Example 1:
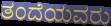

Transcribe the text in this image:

ತಂದೆಯವರು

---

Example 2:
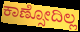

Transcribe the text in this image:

ಕಾಣ್ಸೋದಿಲ್ಲ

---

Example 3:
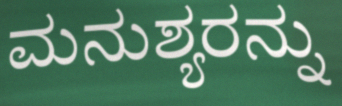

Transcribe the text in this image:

ಮನುಶ್ಯರನ್ನು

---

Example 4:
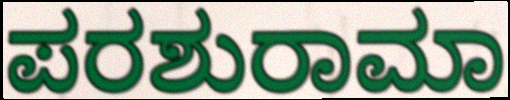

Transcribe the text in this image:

ಪರಶುರಾಮಾ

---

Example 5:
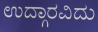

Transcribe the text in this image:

ಉದ್ಗಾರವಿದು